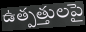
ఉత్పత్తులపై